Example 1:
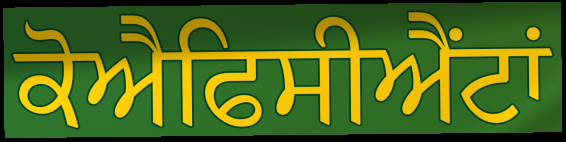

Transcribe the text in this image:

ਕੋਐਫਿਸੀਐਂਟਾਂ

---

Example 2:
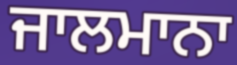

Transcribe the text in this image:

ਜਾਲਮਾਨਾ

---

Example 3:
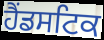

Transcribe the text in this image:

ਹੈਂਡਸਟਿਕ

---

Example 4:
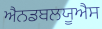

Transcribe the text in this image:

ਐਨਡਬਲਯੂਐਸ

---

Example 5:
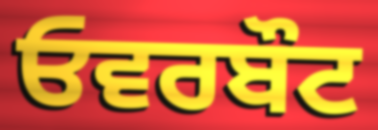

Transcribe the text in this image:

ਓਵਰਬੌਟ